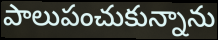
పాలుపంచుకున్నాను